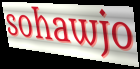
sohawjo